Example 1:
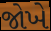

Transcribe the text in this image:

જોખે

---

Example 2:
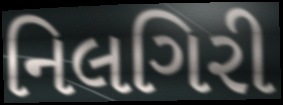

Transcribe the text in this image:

નિલગિરી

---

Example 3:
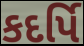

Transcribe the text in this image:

કદર્પિ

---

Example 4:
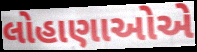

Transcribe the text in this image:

લોહાણાઓએ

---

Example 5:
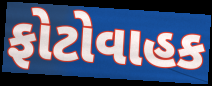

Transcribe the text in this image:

ફોટોવાહક